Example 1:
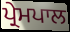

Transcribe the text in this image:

ਪ੍ਰੇਮਪਾਲ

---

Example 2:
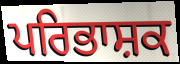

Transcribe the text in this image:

ਪਰਿਭਾਸ਼ਕ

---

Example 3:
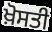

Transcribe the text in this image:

ਖ਼ੋਸਤੀ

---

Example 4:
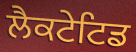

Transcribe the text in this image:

ਲੈਕਟੇਟਿਡ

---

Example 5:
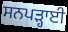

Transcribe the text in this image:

ਸਨਪੜ੍ਹਾਈ